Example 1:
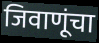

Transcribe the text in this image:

जिवाणूंचा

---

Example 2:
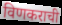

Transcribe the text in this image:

विणकराची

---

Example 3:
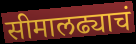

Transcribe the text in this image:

सीमालढ्याचं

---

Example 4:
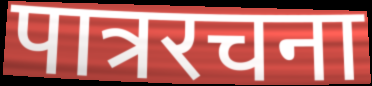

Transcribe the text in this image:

पात्ररचना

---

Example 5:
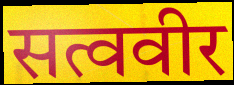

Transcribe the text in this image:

सत्ववीर